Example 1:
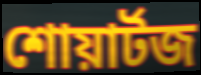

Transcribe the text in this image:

শোয়ার্টজ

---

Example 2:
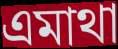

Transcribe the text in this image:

এমাথা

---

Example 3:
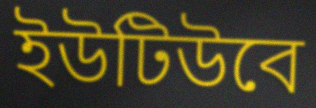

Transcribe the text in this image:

ইউটিউবে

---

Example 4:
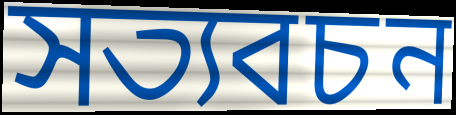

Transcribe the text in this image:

সত্যবচন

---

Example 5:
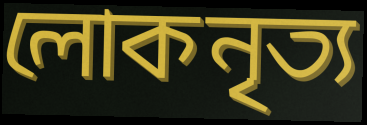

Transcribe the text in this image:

লোকনৃত্য